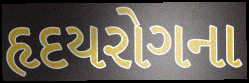
હૃદયરોગના